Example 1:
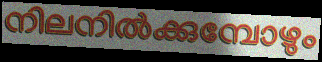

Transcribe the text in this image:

നിലനിൽക്കുമ്പോഴും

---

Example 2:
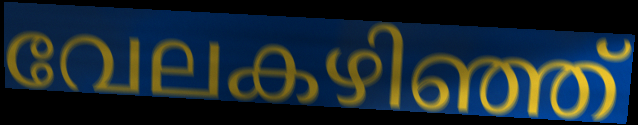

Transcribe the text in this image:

വേലകഴിഞ്ഞ്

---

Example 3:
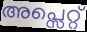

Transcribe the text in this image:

അപ്സെറ്റ്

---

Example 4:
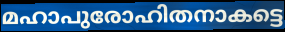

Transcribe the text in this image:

മഹാപുരോഹിതനാകട്ടെ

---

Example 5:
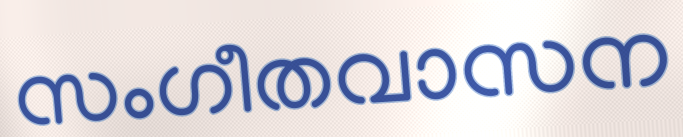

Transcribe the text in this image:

സംഗീതവാസന